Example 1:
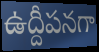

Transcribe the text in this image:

ఉద్దీపనగా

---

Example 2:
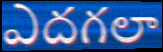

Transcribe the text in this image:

ఎదగలా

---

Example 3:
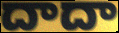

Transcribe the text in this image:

దాదా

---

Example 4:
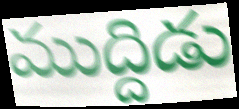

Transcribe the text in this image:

ముద్దిడు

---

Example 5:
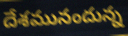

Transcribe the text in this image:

దేశమునందున్న